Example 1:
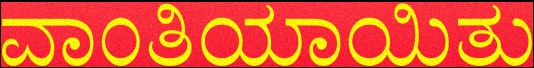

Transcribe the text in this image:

ವಾಂತಿಯಾಯಿತು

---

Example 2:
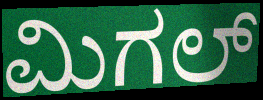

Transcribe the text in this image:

ಮಿಗಲ್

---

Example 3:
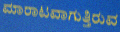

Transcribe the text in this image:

ಮಾರಾಟವಾಗುತ್ತಿರುವ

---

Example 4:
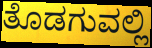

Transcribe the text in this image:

ತೊಡಗುವಲ್ಲಿ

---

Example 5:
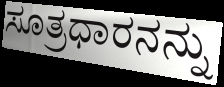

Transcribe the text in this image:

ಸೂತ್ರಧಾರನನ್ನು